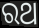
ରଥ